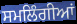
ਸਮਲਿੰਗੀਆਂ